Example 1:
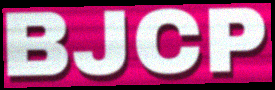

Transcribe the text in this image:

BJCP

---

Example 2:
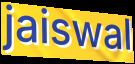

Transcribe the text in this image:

jaiswal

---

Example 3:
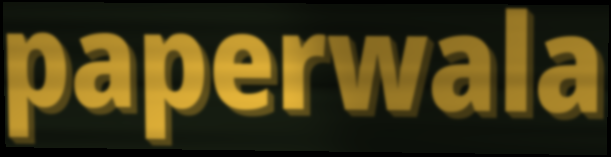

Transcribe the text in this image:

paperwala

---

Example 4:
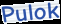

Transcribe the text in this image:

Pulok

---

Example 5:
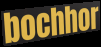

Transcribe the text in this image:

bochhor